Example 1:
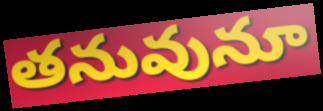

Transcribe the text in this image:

తనువునూ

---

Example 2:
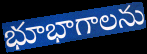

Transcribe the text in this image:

భూభాగాలను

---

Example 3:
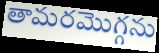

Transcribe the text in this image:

తామరమొగ్గను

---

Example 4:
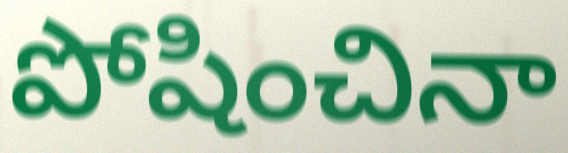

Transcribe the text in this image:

పోషించినా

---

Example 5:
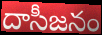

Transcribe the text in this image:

దాసీజనం